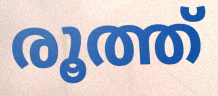
രൂത്ത്